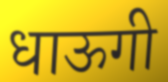
धाऊगी